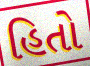
હિતો